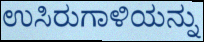
ಉಸಿರುಗಾಳಿಯನ್ನು